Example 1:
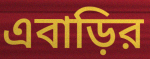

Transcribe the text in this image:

এবাড়ির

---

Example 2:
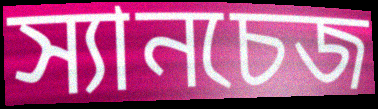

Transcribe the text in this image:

স্যানচেজ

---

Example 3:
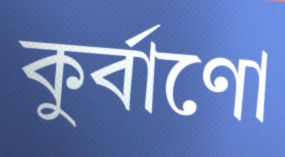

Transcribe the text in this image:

কুর্বাণো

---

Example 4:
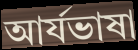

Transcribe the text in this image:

আর্যভাষা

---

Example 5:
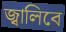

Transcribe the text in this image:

জ্বালিবে